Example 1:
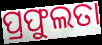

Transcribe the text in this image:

ପ୍ରଫୁଲତା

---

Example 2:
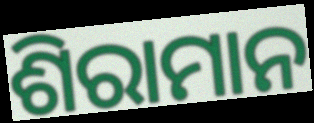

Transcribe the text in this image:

ଶିରାମାନ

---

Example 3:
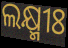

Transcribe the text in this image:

ଲକ୍ଷ୍ମୀଃ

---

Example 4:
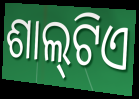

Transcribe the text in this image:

ଶାଲ୍‌ଟିଏ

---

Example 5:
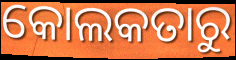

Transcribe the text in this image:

କୋଲକତାରୁ